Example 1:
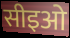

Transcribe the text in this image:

सीइओ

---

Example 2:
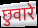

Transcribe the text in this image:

छुवारे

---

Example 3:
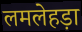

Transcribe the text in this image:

लमलेहड़ा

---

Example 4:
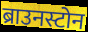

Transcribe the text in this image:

ब्राउनस्टोन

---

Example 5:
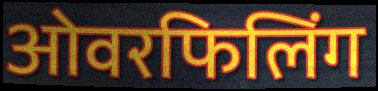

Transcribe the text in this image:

ओवरफिलिंग